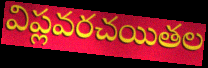
విప్లవరచయితల